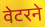
वेटरने